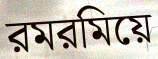
রমরমিয়ে